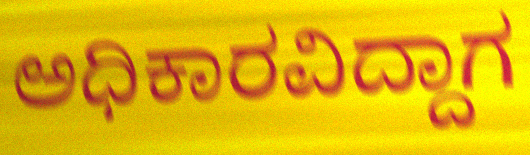
ಅಧಿಕಾರವಿದ್ದಾಗ